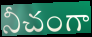
నీచంగా